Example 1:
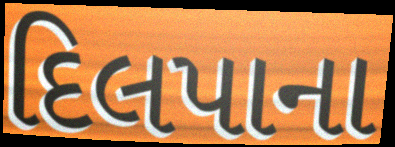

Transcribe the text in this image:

દિલપાના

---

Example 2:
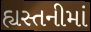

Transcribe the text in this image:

હ્યસ્તનીમાં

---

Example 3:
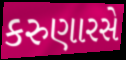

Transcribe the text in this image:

કરુણારસે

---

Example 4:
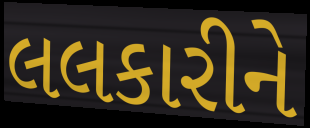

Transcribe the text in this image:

લલકારીને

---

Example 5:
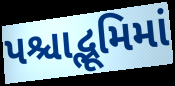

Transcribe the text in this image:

પશ્ચાદ્ભૂમિમાં